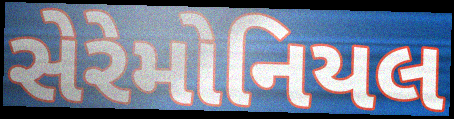
સેરેમોનિયલ